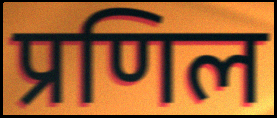
प्रणिल